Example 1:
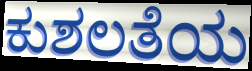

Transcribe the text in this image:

ಕುಶಲತೆಯ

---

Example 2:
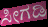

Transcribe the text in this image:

ಸೀಗಡಿ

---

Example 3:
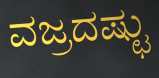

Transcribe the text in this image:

ವಜ್ರದಷ್ಟು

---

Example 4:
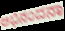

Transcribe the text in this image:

ಅಭಿನಂದನಾ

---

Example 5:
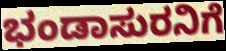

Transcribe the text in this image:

ಭಂಡಾಸುರನಿಗೆ